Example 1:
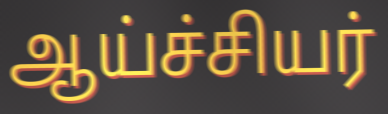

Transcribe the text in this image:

ஆய்ச்சியர்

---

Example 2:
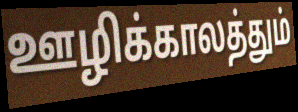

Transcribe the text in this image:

ஊழிக்காலத்தும்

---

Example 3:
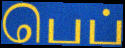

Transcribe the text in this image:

பெப்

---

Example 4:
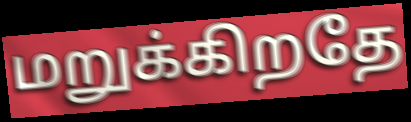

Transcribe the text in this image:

மறுக்கிறதே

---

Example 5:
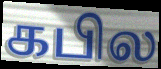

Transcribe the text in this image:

கபில